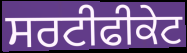
ਸਰਟੀਫੀਕੇਟ